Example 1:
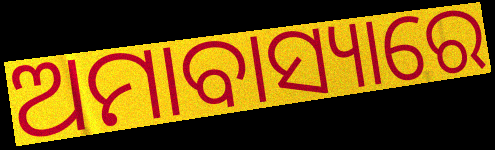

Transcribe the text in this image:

ଅମାବାସ୍ୟାରେ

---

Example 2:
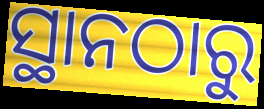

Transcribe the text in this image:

ସ୍ଥାନଠାରୁ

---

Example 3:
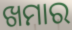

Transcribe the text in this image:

ଖମାର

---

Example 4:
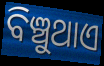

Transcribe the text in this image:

ବିଞ୍ଚୁଥାଏ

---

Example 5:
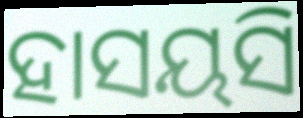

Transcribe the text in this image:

ହାସୟସି